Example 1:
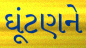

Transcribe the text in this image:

ઘૂંટણને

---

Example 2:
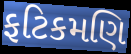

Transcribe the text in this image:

ફટિકમણિ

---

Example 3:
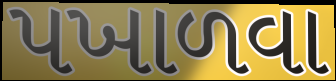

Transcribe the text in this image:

પખાળવા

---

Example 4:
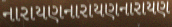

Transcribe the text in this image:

નારાયણનારાયણનારાયણ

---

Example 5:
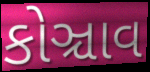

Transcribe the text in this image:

કોઞ્ચાવ